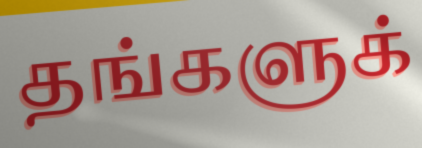
தங்களுக்